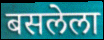
बसलेला